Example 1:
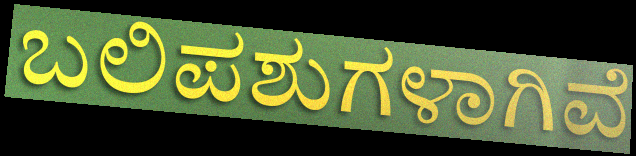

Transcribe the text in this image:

ಬಲಿಪಶುಗಳಾಗಿವೆ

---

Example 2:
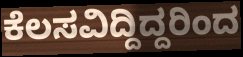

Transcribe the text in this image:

ಕೆಲಸವಿದ್ದಿದ್ದರಿಂದ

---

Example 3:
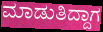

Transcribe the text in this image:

ಮಾಡುತಿದ್ದಾಗ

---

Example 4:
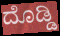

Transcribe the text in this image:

ದೊಡ್ಡಿ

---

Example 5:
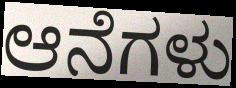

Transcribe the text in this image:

ಆನೆಗಳು